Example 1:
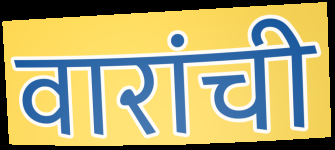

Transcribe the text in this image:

वारांची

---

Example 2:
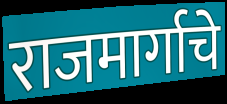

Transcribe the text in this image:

राजमार्गाचे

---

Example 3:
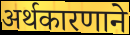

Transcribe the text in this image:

अर्थकारणाने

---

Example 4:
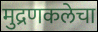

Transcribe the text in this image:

मुद्रणकलेचा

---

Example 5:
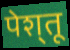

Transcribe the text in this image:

पेश्तू